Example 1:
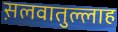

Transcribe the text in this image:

स़लवातुल्लाह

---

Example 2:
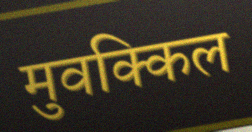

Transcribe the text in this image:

मुवक्किल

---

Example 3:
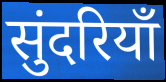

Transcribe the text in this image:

सुंदरियाँ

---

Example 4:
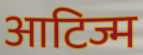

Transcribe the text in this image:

आटिज्म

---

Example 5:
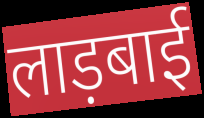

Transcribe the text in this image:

लाड़बाई